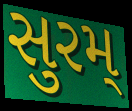
સુરમ્